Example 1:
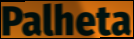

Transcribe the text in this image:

Palheta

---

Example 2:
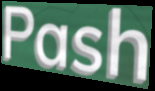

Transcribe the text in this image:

Pash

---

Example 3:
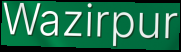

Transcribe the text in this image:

Wazirpur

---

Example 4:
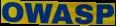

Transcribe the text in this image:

OWASP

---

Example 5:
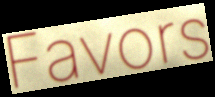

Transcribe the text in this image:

Favors